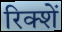
रिक्शें